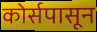
कोर्सपासून